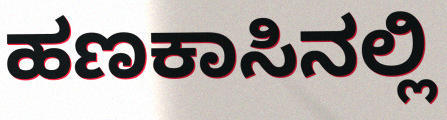
ಹಣಕಾಸಿನಲ್ಲಿ